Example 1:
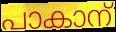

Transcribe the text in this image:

പാകാന്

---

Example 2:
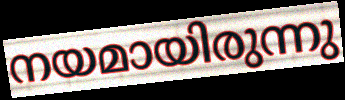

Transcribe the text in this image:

നയമായിരുന്നു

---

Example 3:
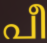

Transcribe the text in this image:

പീ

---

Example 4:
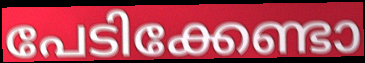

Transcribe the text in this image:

പേടിക്കേണ്ടാ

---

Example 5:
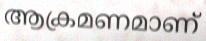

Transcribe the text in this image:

ആക്രമണമാണ്